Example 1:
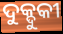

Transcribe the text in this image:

ଦୁକ୍ଦୁକୀ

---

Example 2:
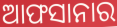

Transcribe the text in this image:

ଆଫସାନାର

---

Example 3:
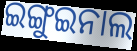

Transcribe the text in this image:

ଇଙ୍ଗୁଇନାଲ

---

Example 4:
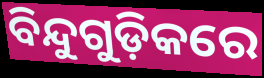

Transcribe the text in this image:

ବିନ୍ଦୁଗୁଡ଼ିକରେ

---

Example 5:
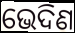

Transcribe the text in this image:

ଭେଦିଣ